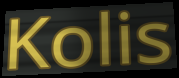
Kolis